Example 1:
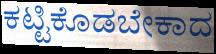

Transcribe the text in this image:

ಕಟ್ಟಿಕೊಡಬೇಕಾದ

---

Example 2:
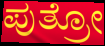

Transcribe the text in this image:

ಪುತ್ರೋ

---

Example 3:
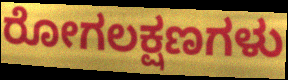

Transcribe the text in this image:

ರೋಗಲಕ್ಷಣಗಳು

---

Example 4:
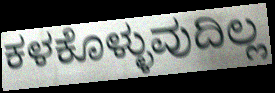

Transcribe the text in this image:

ಕಳಕೊಳ್ಳುವುದಿಲ್ಲ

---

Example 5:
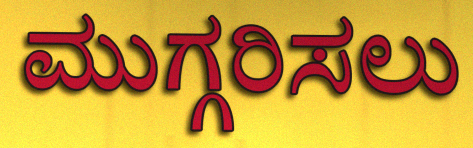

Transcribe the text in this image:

ಮುಗ್ಗರಿಸಲು